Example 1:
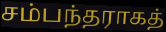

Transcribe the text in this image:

சம்பந்தராகத்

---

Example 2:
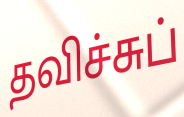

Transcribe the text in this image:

தவிச்சுப்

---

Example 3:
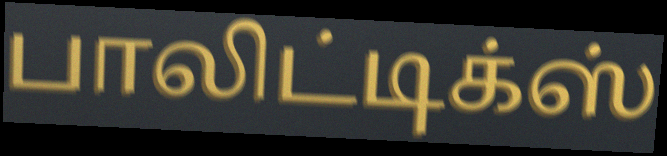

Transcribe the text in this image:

பாலிட்டிக்ஸ்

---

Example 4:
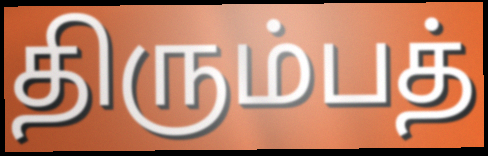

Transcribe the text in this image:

திரும்பத்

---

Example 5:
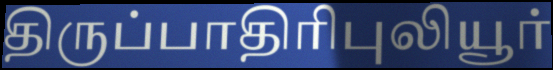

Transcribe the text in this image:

திருப்பாதிரிபுலியூர்